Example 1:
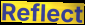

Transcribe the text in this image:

Reflect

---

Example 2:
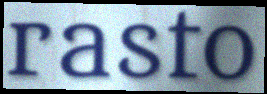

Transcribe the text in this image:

rasto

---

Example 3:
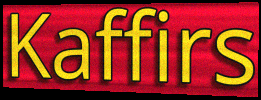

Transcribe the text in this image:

Kaffirs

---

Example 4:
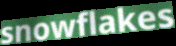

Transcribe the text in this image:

snowflakes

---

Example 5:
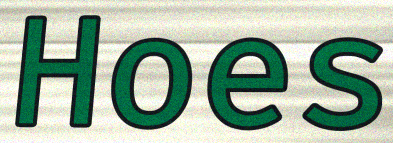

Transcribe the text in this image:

Hoes